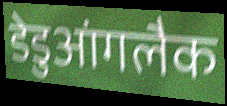
डेडुआंगलैक